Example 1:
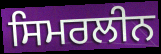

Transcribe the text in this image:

ਸਿਮਰਲੀਨ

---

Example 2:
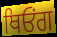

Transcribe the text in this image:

ਥਿਓਂਗ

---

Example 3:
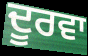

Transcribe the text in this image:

ਦੂਰਵਾ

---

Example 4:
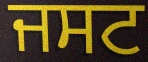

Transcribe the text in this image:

ਜਸਟ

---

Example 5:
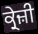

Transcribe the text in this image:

ਕ੍ਰੇਜ਼ੀ